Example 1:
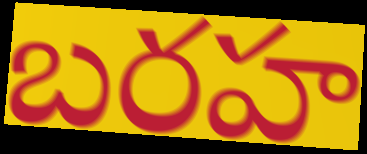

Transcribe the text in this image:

బరహ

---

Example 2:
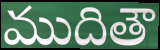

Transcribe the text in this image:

ముదితౌ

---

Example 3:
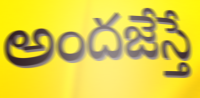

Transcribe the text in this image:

అందజేస్తే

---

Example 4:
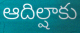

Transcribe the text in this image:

ఆదిల్షాకు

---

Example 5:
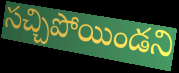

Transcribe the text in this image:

సచ్చిపోయిండని